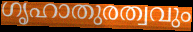
ഗൃഹാതുരത്വവും